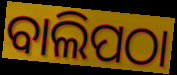
ବାଲିପଠା